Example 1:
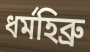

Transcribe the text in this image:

ধৰ্মহিব্ৰু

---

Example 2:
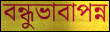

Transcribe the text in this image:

বন্ধুভাবাপন্ন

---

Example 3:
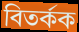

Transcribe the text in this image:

বিতৰ্কক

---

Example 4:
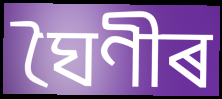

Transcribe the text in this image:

ঘৈণীৰ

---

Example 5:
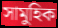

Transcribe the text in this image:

সামুহিক